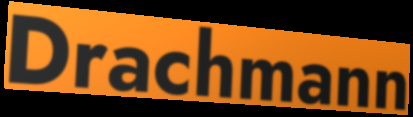
Drachmann